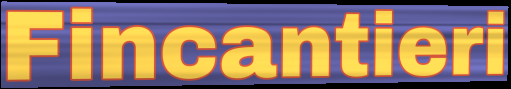
Fincantieri